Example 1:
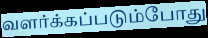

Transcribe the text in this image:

வளர்க்கப்படும்போது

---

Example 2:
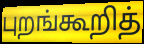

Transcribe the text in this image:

புறங்கூறித்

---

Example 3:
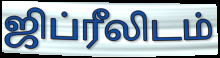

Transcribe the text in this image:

ஜிப்ரீலிடம்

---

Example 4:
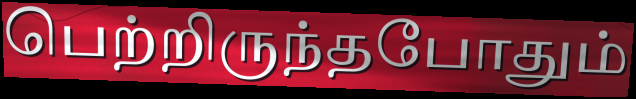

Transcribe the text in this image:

பெற்றிருந்தபோதும்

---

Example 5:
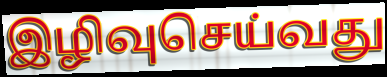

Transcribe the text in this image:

இழிவுசெய்வது